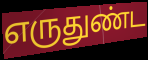
எருதுண்ட